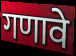
गणावे